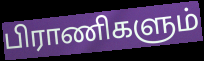
பிராணிகளும்